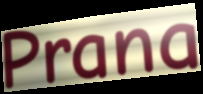
Prana